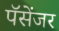
पॅसेंजर